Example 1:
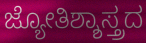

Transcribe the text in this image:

ಜ್ಯೋತಿಶ್ಶಾಸ್ತ್ರದ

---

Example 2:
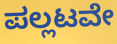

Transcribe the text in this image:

ಪಲ್ಲಟವೇ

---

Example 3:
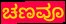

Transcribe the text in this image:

ಚಣವೂ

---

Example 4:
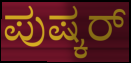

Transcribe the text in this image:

ಪುಷ್ಕರ್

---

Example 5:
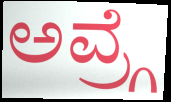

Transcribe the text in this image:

ಅವ್ರ್ಗೆ